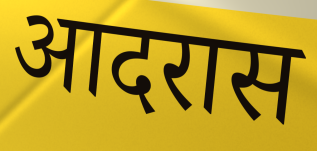
आदरास